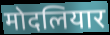
मोदलियार